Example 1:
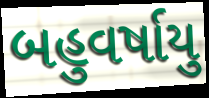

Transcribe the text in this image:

બહુવર્ષાયુ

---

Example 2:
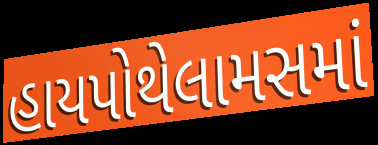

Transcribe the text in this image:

હાયપોથેલામસમાં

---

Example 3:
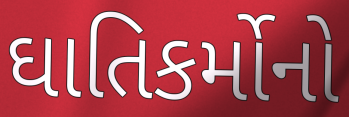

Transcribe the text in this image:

ઘાતિકર્મોનો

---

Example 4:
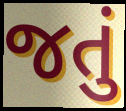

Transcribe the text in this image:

જતું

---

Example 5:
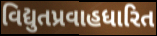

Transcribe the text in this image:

વિદ્યુતપ્રવાહધારિત